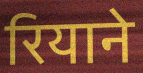
रियाने